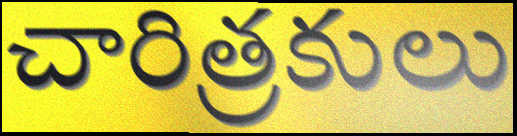
చారిత్రకులు